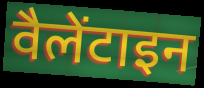
वैलेंटाइन